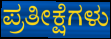
ಪ್ರತೀಕ್ಷೆಗಳು